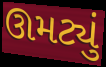
ઊમટ્યું